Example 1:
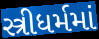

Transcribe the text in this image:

સ્ત્રીધર્મમાં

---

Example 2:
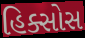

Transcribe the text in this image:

હિક્સોસ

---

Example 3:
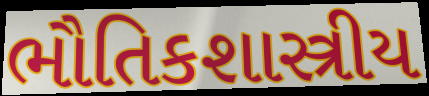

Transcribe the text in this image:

ભૌતિકશાસ્ત્રીય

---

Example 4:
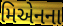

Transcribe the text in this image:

મિએનના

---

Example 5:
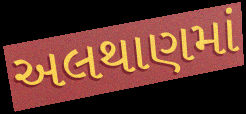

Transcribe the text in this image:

અલથાણમાં